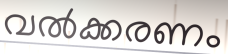
വൽക്കരണം